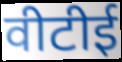
वीटीई